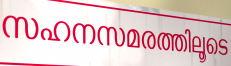
സഹനസമരത്തിലൂടെ